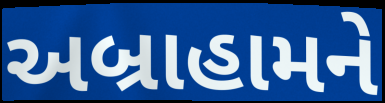
અબ્રાહામને